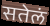
सतेलं